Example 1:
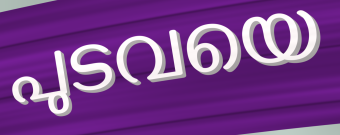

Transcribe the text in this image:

പുടവയെ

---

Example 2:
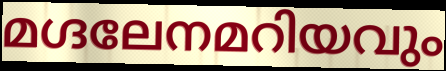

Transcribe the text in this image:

മഗ്ദലേനമറിയവും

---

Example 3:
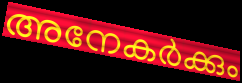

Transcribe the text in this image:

അനേകർക്കും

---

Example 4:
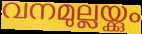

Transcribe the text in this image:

വനമുല്ലയ്ക്കും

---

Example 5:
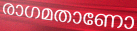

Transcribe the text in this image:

രാഗമതാണോ